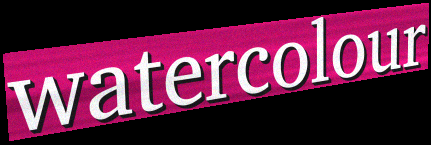
watercolour